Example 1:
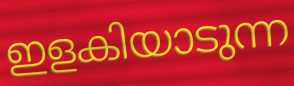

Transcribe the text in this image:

ഇളകിയാടുന്ന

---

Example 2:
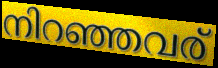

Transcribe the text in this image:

നിറഞ്ഞവര്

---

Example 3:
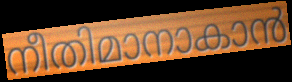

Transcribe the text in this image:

നീതിമാനാകാൻ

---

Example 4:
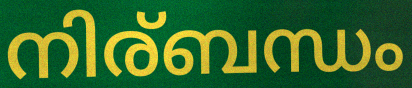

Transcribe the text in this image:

നിര്ബന്ധം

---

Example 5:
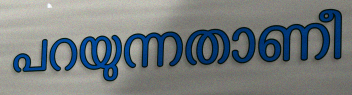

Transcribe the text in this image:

പറയുന്നതാണീ